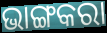
ଭାଙ୍ଗକରା